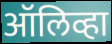
ऑलिव्हा